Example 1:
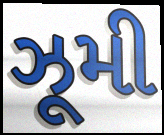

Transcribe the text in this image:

ઝૂમી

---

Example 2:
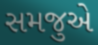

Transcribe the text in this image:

સમજુએ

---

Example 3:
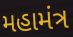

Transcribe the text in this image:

મહામંત્ર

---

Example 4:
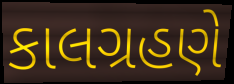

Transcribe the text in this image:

કાલગ્રહણે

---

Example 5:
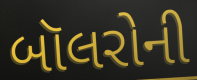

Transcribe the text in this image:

બૉલરોની